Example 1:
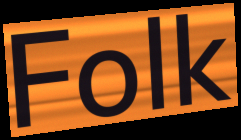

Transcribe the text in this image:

Folk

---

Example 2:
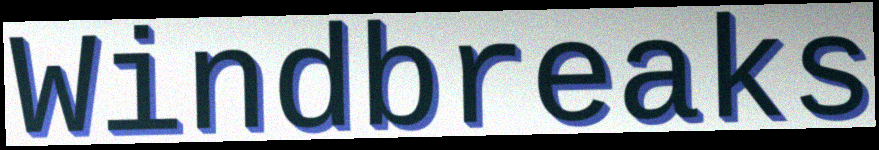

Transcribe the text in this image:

Windbreaks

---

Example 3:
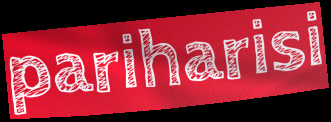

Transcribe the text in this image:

pariharisi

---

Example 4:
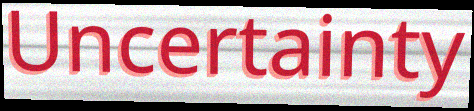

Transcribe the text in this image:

Uncertainty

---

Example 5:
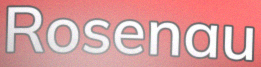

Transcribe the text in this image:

Rosenau